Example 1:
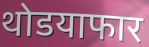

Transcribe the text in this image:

थोडयाफार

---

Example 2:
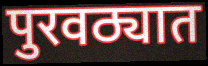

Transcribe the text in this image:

पुरवठ्यात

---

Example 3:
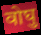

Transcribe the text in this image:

वोघु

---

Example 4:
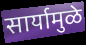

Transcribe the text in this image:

सार्यामुळे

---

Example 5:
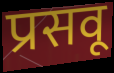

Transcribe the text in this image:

प्रसवू